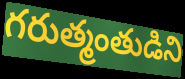
గరుత్మంతుడిని